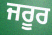
ਜਰੂਰ